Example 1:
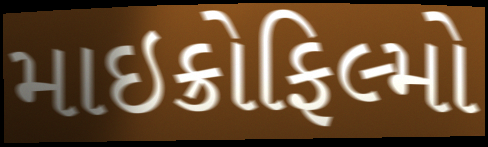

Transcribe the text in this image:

માઇક્રોફિલ્મો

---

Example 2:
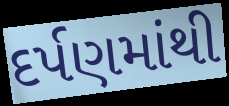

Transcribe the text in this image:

દર્પણમાંથી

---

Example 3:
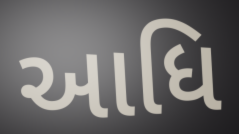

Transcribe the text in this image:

આધિ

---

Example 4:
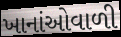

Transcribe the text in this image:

ખાનાંઓવાળી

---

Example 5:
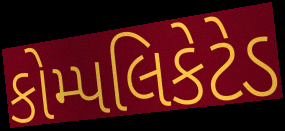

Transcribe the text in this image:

કોમ્પલિકેટેડ